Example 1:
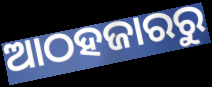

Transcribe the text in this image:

ଆଠହଜାରରୁ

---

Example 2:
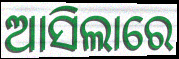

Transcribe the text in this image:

ଆସିଲାରେ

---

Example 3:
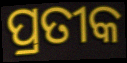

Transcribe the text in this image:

ପ୍ରତୀକ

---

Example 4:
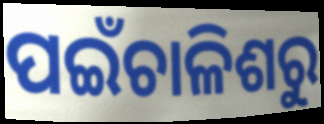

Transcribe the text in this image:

ପଇଁଚାଳିଶରୁ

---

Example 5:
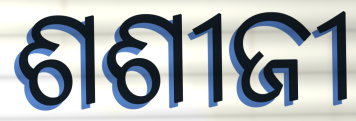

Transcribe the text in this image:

ଶଶୀଜୀ